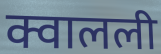
क्वालली